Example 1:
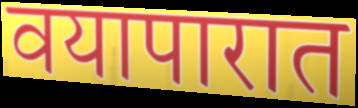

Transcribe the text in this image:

वयापारात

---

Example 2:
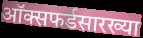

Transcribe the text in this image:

ऑक्सफर्डसारख्या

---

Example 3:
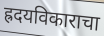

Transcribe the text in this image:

ह्रदयविकाराचा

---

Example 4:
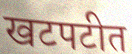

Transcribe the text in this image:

खटपटीत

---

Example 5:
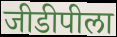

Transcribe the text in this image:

जीडीपीला